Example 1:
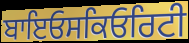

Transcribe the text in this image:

ਬਾਇਓਸਕਿਓਰਿਟੀ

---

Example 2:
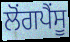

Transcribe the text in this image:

ਲੋਂਗਪੈਂਸੂ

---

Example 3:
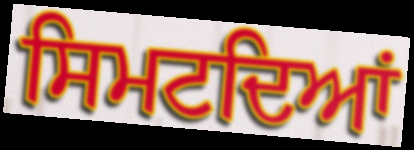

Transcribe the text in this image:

ਸਿਮਟਦਿਆਂ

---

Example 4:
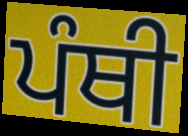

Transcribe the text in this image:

ਪੰਥੀ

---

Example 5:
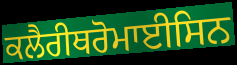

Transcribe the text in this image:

ਕਲੈਰੀਥਰੋਮਾਈਸਿਨ